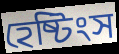
হেষ্টিংস